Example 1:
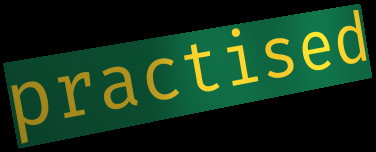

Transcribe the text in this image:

practised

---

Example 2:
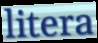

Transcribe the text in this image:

litera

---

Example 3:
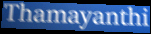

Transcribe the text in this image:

Thamayanthi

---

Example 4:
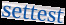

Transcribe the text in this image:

settest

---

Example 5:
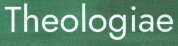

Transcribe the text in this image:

Theologiae